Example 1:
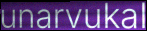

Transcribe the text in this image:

unarvukal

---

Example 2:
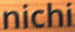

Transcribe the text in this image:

nichi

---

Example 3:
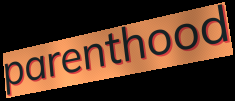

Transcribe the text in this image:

parenthood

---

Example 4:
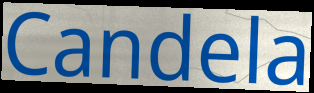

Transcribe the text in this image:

Candela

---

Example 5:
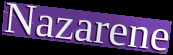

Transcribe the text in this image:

Nazarene